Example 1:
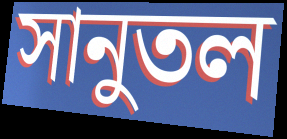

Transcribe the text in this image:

সানুতল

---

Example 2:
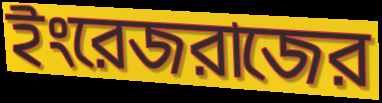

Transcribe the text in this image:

ইংরেজরাজের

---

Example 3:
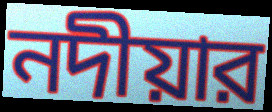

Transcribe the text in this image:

নদীয়ার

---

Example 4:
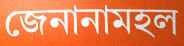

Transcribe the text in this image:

জেনানামহল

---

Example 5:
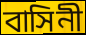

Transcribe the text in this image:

বাসিনী